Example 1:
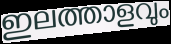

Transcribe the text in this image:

ഇലത്താളവും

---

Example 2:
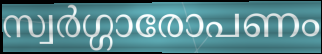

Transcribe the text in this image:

സ്വർഗ്ഗാരോപണം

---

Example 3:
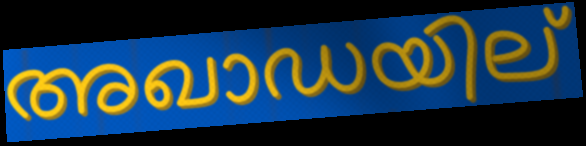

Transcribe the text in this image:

അഖാഡയില്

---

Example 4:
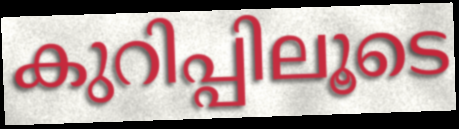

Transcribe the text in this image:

കുറിപ്പിലൂടെ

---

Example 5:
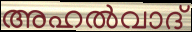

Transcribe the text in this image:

അഹൽവാദ്